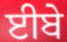
ਈਬੇ